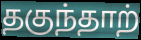
தகுந்தாற்